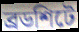
ব্রডশিটে